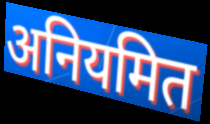
अनियमित